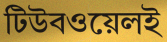
টিউবওয়েলই